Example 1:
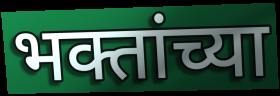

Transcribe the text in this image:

भक्तांच्या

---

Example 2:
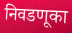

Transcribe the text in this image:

निवडणूका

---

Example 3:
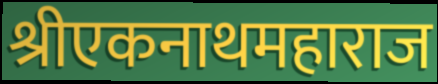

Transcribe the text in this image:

श्रीएकनाथमहाराज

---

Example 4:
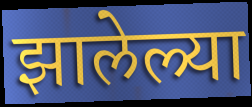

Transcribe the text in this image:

झालेल्या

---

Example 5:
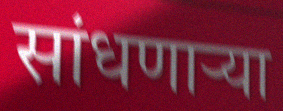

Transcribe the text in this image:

सांधणार्‍या